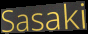
Sasaki